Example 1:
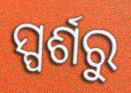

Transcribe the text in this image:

ସ୍ପର୍ଶରୁ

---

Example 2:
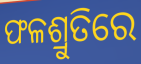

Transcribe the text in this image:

ଫଳଶ୍ରୁତିରେ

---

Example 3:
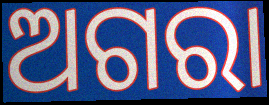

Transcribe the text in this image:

ଅଗରା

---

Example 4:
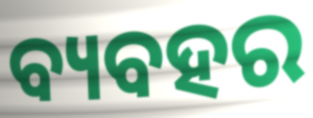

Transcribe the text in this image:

ବ୍ୟବହର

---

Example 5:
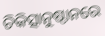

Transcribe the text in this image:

ଚିକିତ୍ସାନୁଷ୍ଠାନରେ